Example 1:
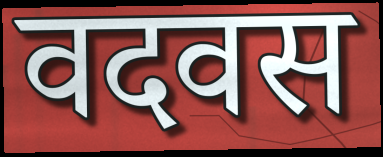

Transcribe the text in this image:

वदवस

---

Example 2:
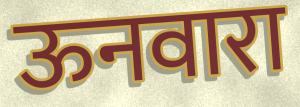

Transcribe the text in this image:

ऊनवारा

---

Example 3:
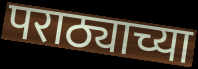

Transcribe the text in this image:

पराठ्याच्या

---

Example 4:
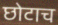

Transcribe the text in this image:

छोटाच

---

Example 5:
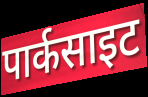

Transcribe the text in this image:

पार्कसाइट